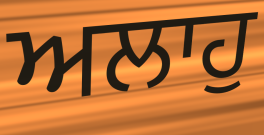
ਅਲਾਹੁ